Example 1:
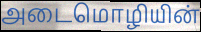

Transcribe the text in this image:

அடைமொழியின்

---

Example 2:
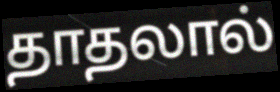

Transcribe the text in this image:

தாதலால்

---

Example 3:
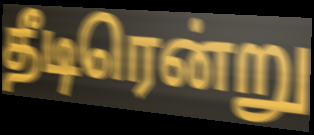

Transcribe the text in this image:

தீடிரென்று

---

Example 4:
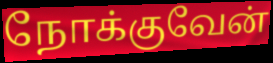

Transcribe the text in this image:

நோக்குவேன்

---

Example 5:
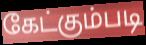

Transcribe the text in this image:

கேட்கும்படி